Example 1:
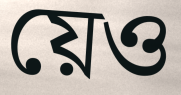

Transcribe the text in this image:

য়েও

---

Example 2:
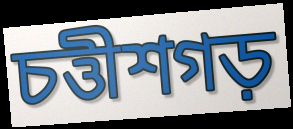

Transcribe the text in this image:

চত্তীশগড়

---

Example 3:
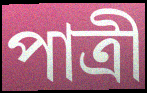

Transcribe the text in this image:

পাত্ৰী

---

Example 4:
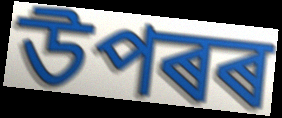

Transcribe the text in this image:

উপৰৰ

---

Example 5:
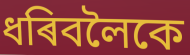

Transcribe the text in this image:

ধৰিবলৈকে